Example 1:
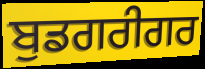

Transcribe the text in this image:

ਬੁਡਗਰੀਗਰ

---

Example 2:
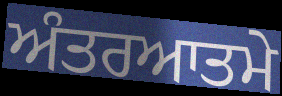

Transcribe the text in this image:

ਅੰਤਰਆਤਮੇ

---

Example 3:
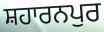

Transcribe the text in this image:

ਸ਼ਹਾਰਨਪੁਰ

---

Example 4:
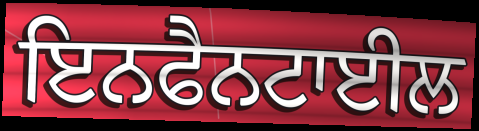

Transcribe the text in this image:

ਇਨਫੈਨਟਾਈਲ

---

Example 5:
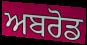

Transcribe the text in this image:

ਅਬਰੋਡ